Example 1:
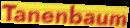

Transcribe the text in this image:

Tanenbaum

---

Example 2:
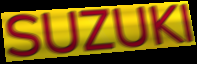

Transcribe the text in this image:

SUZUKI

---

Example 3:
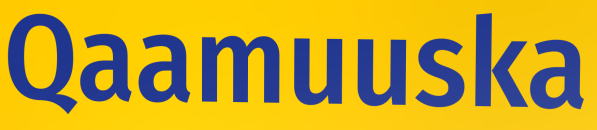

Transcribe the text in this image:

Qaamuuska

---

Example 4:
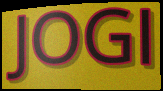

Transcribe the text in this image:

JOGI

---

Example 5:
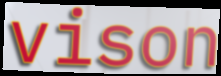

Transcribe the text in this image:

vison